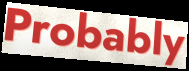
Probably